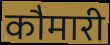
कौमारी